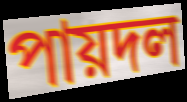
পায়দল